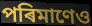
পৰিমাণেও